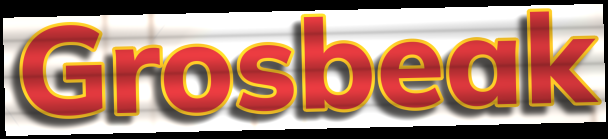
Grosbeak